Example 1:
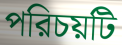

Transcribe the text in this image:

পরিচয়টি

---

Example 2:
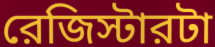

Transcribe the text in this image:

রেজিস্টারটা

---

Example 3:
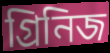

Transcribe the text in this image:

গ্রিনিজ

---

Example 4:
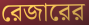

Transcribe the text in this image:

রেজারের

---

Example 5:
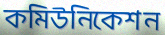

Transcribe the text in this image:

কমিউনিকেশন